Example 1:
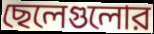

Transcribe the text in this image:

ছেলেগুলোর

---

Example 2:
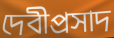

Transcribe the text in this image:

দেবীপ্রসাদ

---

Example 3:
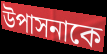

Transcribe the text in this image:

উপাসনাকে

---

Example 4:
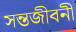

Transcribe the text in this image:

সন্তজীবনী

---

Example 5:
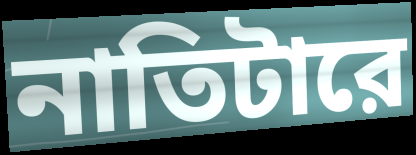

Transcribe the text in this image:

নাতিটারে